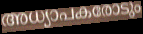
അധ്യാപകരോടും